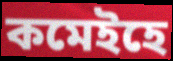
কমেইহে